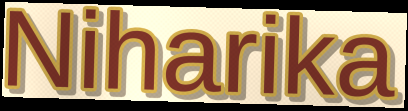
Niharika